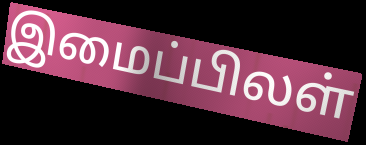
இமைப்பிலள்